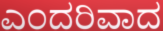
ಎಂದರಿವಾದ